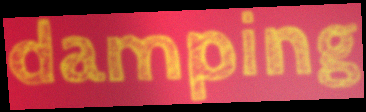
damping